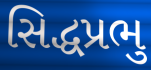
સિદ્ધપ્રભુ